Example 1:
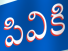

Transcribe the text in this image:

పివికి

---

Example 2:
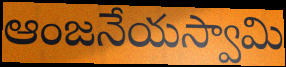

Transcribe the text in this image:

ఆంజనేయస్వామి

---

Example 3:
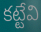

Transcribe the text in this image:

కట్టేవి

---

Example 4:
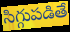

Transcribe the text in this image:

సిగ్గుపడితే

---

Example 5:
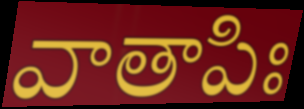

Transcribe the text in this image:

వాతాపిః